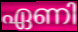
ഏണി